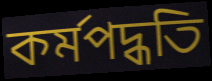
কর্মপদ্ধতি